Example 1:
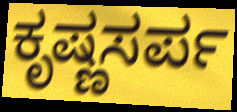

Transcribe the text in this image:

ಕೃಷ್ಣಸರ್ಪ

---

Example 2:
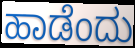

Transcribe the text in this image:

ಹಾಡೆಂದು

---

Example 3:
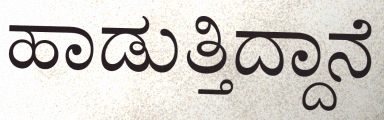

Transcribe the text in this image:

ಹಾಡುತ್ತಿದ್ದಾನೆ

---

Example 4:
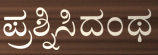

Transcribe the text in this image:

ಪ್ರಶ್ನಿಸಿದಂಥ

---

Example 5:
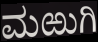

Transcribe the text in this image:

ಮಱುಗಿ